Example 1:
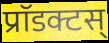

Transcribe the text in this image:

प्रॉडक्टस्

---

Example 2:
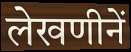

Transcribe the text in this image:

लेखणीनें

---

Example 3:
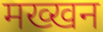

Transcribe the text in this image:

मख्खन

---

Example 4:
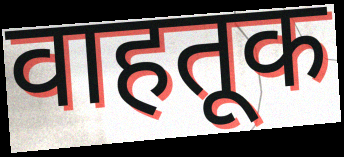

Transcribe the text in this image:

वाहतूक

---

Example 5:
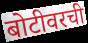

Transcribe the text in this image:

बोटीवरची